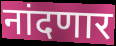
नांदणार